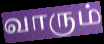
வாரும்